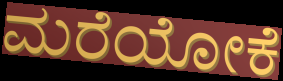
ಮರೆಯೋಕೆ